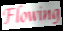
Flowing